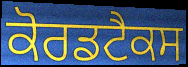
ਕੋਰਡਟੈਕਸ